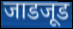
जाडजूड